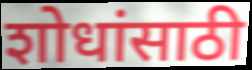
शोधांसाठी